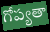
గోప్యతా